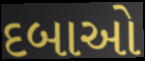
દબાઓ